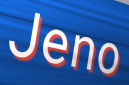
Jeno